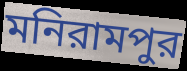
মনিরামপুর